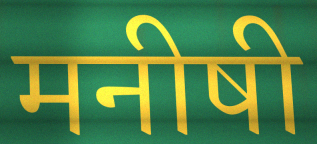
मनीषी